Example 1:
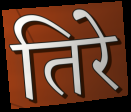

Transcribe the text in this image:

तिरे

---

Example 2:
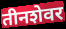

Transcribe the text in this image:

तीनशेवर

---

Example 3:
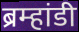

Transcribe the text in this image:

ब्रम्हांडी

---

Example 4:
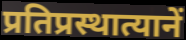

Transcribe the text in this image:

प्रतिप्रस्थात्यानें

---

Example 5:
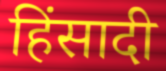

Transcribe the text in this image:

हिंसादी